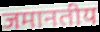
जमानतीय